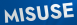
MISUSE